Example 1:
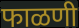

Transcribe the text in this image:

फाळणी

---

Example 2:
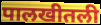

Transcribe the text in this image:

पालखीतली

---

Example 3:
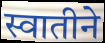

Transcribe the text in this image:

स्वातीने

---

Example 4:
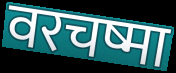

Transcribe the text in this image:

वरचष्मा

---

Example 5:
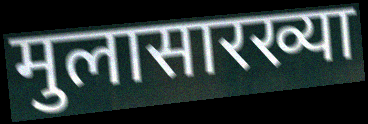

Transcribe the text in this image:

मुलासारख्या